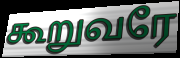
கூறுவரே